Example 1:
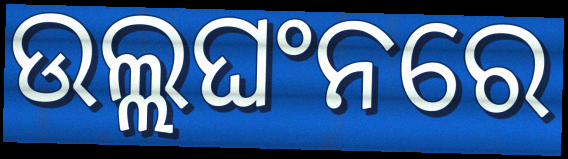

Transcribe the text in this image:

ଉଲ୍ଲଘଂନରେ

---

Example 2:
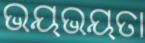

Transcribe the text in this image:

ଭୟଭୟତା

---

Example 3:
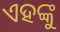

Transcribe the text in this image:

ଏହଙ୍କୁ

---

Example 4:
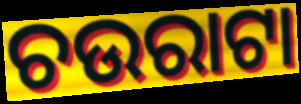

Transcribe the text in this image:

ଚଉରାଟା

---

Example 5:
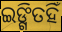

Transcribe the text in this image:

ଇଙ୍ଗିତହିଁ